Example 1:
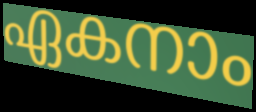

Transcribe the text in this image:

ഏകനാം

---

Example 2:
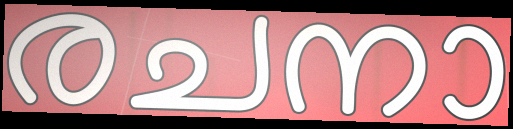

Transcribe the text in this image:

രചനാ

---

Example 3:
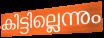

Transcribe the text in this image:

കിട്ടില്ലെന്നും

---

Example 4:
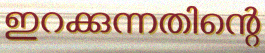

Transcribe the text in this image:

ഇറക്കുന്നതിന്റെ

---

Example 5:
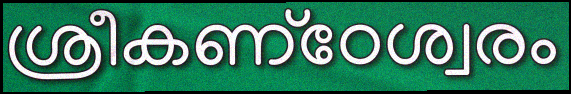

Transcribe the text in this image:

ശ്രീകണ്‌ഠേശ്വരം